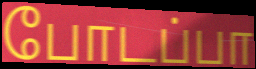
போடப்பா